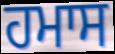
ਹਮਾਸ